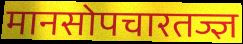
मानसोपचारतज्ज्ञ